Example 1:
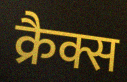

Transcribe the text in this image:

क्रैक्स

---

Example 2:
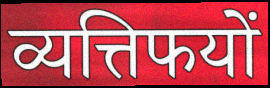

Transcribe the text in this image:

व्यत्तिफयों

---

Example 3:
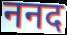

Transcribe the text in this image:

ननद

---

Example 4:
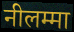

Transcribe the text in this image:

नीलम्मा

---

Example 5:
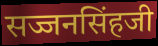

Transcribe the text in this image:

सज्जनसिंहजी